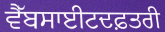
ਵੈੱਬਸਾਈਟਦਫ਼ਤਰੀ